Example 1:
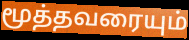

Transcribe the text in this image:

மூத்தவரையும்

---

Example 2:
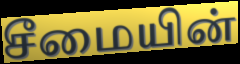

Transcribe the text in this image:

சீமையின்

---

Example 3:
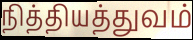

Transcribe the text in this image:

நித்தியத்துவம்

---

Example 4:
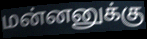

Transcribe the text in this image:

மன்னனுக்கு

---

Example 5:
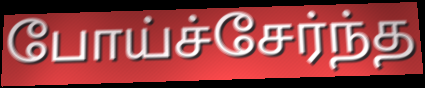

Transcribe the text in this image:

போய்ச்சேர்ந்த